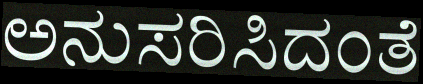
ಅನುಸರಿಸಿದಂತೆ